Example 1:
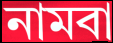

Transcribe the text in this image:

নামবা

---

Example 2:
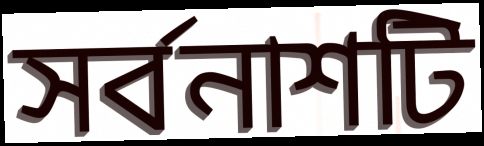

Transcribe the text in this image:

সর্বনাশটি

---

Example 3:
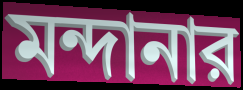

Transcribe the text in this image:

মন্দানার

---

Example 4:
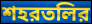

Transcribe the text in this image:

শহরতলির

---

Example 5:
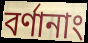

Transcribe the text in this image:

বর্ণানাং